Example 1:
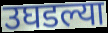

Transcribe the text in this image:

उघडल्या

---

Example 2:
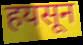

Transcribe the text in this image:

हयसून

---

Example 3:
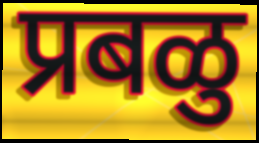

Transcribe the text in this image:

प्रबळु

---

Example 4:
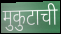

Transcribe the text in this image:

मुकुटाची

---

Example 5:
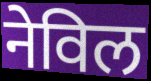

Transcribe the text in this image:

नेविल